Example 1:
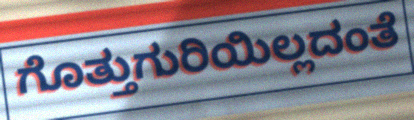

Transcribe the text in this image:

ಗೊತ್ತುಗುರಿಯಿಲ್ಲದಂತೆ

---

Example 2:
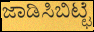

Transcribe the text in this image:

ಜಾಡಿಸಿಬಿಟ್ಟೆ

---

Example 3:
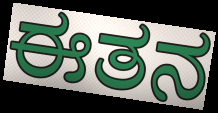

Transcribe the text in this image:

ಈತನ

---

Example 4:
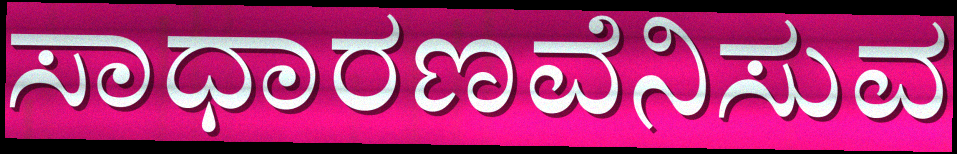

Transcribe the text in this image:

ಸಾಧಾರಣವೆನಿಸುವ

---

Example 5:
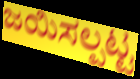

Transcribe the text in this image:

ಜಯಿಸಲ್ಪಟ್ಟ